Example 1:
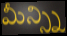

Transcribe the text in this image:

మీన్స్ని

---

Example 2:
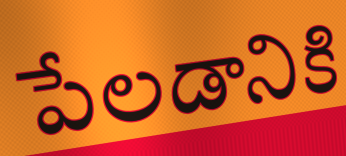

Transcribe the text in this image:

పేలడానికి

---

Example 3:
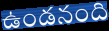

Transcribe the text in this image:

ఉండనంది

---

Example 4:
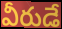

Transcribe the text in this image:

వీరుడే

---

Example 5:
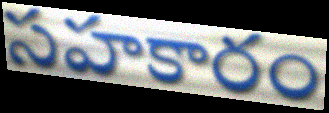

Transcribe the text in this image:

సహకారం